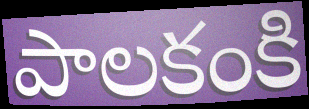
పాలకంకి